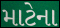
માટેના